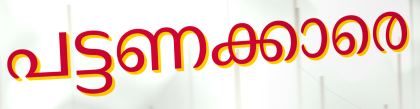
പട്ടണക്കാരെ